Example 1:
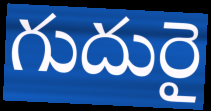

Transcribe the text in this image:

గుదురై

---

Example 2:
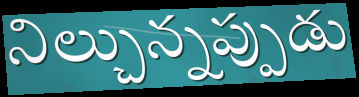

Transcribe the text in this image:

నిల్చున్నప్పుడు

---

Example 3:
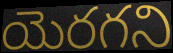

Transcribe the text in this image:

యెరగని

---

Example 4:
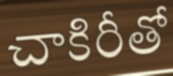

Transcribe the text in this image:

చాకిరీతో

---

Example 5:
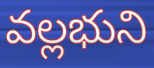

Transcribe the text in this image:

వల్లభుని